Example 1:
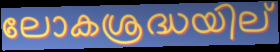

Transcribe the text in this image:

ലോകശ്രദ്ധയില്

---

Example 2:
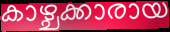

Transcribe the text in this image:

കാഴ്ചക്കാരായ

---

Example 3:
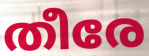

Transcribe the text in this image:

തീരേ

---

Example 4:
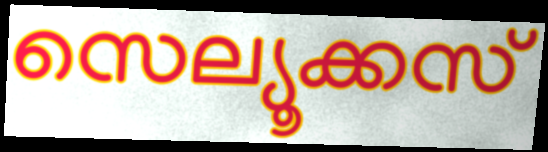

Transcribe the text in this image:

സെല്യൂക്കസ്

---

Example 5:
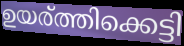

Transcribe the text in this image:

ഉയര്ത്തിക്കെട്ടി